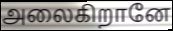
அலைகிறானே